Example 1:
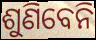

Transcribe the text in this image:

ଶୁଣିବେନି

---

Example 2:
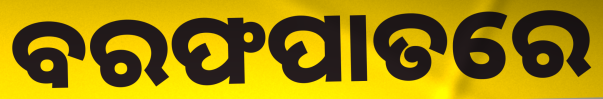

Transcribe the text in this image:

ବରଫପାତରେ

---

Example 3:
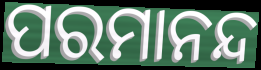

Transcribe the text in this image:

ପରମାନନ୍ଦ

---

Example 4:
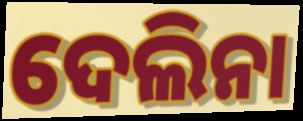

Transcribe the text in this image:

ଦେଲିନା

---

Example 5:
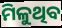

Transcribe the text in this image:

ମିଳୁଥିବ